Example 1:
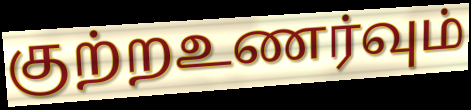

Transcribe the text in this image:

குற்றஉணர்வும்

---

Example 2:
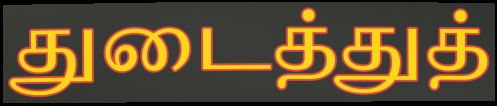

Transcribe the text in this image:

துடைத்துத்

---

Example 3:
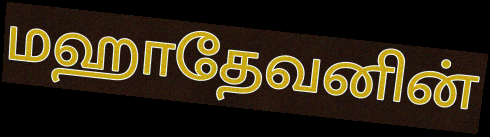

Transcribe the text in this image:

மஹாதேவனின்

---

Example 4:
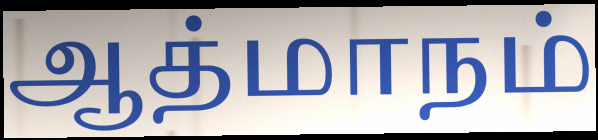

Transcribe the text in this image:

ஆத்மாநம்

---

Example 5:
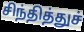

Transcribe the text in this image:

சிந்தித்துச்